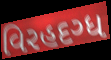
વિરહદગ્ધ